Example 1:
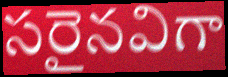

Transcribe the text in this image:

సరైనవిగా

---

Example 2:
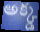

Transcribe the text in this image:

అక్క్డ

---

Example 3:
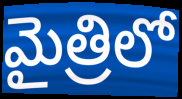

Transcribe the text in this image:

మైత్రిలో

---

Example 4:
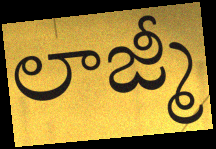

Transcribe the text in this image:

లాజ్మీ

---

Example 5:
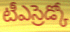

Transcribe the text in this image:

టీఎస్రెడ్కో